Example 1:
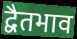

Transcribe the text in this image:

द्वैतभाव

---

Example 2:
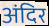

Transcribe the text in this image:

अंदिर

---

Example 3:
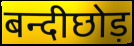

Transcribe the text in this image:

बन्दीछोड़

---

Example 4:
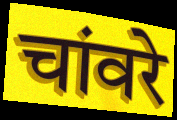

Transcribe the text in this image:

चांवरे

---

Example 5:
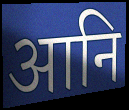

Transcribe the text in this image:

आनि